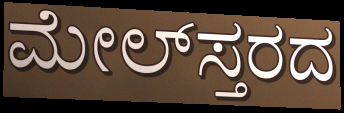
ಮೇಲ್‌ಸ್ತರದ